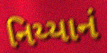
નિય્યાનં